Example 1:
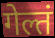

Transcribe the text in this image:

गेल्तं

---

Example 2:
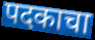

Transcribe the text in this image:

पदकाचा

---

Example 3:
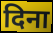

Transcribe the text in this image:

दिना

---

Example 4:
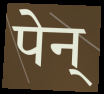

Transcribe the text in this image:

पेन्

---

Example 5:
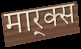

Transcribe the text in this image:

मार्क्स